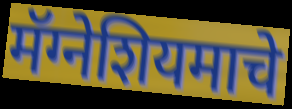
मॅग्नेशियमाचे